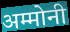
अम्मोनी